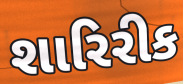
શારિરીક